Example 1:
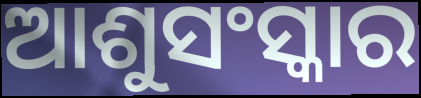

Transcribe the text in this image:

ଆଶୁସଂସ୍କାର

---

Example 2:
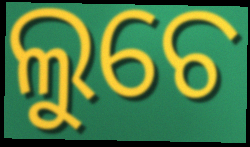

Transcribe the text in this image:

ଲୁଚେ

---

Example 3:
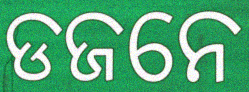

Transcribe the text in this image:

ଡଜନେ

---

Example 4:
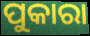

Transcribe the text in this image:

ପୁକାରା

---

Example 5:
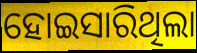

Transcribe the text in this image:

ହୋଇସାରିଥିଲା